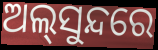
ଅଲ୍‌ସୁନ୍ଦରେ